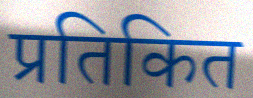
प्रतिकित